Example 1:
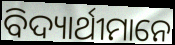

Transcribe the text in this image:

ବିଦ୍ୟାର୍ଥୀମାନେ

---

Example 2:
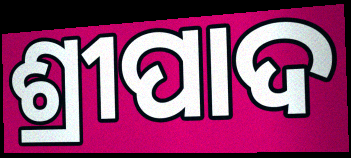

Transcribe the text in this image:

ଶ୍ରୀପାଦ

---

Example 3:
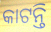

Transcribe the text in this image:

କାଟନ୍ତି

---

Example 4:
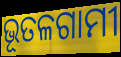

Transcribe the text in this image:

ଭୂତଳଗାମୀ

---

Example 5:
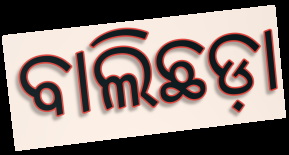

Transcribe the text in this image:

ବାଲିଛଡ଼ା